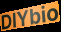
DIYbio